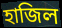
হাজিল